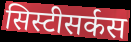
सिस्टीसर्कस